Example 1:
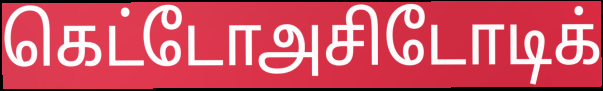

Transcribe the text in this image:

கெட்டோஅசிடோடிக்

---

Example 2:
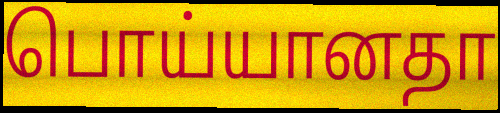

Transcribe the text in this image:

பொய்யானதா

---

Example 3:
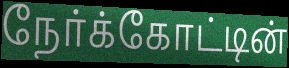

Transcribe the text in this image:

நேர்க்கோட்டின்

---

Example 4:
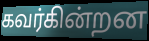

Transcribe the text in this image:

கவர்கின்றன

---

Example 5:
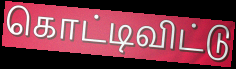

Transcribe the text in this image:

கொட்டிவிட்டு